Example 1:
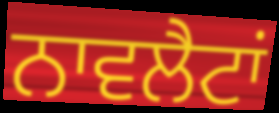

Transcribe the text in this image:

ਨਾਵਲੈਟਾਂ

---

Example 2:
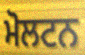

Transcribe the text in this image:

ਮੋਲਟਨ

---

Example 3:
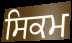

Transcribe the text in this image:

ਸਿਕਮ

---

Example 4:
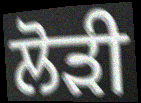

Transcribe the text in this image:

ਲੋੜੀ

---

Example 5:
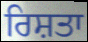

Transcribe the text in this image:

ਰਿਸ਼ਤਾ